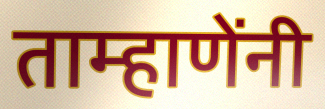
ताम्हाणेंनी